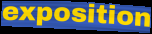
exposition